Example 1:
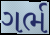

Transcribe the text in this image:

ગર્ભ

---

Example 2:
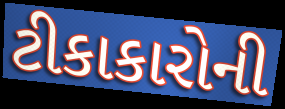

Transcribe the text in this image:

ટીકાકારોની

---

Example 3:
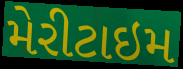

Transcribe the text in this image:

મેરીટાઇમ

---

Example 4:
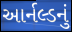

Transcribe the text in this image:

આર્નલ્ડનું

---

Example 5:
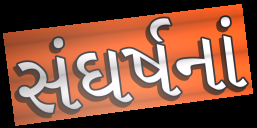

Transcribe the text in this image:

સંઘર્ષનાં